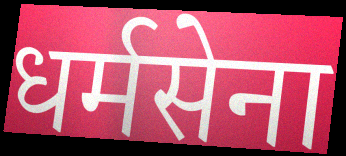
धर्मसेना